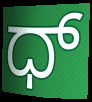
ಧ್